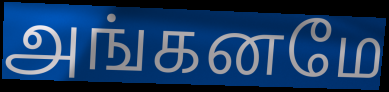
அங்கனமே